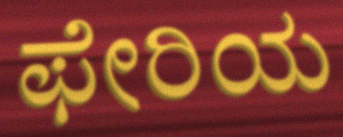
ಫೇರಿಯ